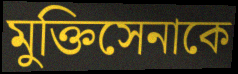
মুক্তিসেনাকে